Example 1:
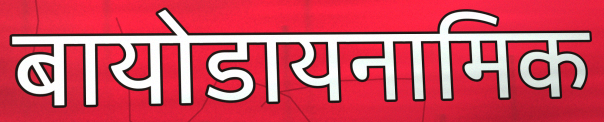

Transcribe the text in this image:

बायोडायनामिक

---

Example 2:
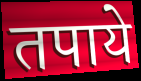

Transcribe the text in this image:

तपाये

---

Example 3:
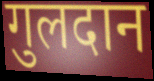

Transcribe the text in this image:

गुलदान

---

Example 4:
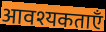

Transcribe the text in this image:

आवश्यकताएँ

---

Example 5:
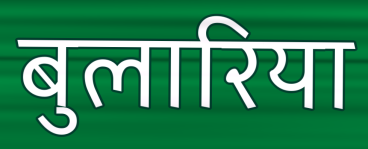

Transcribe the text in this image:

बुलारिया